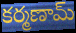
కర్మణామ్